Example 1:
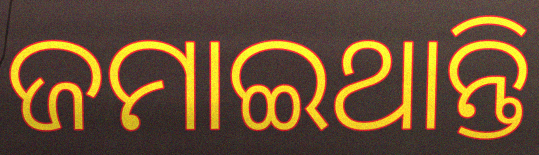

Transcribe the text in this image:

ଜମାଇଥାନ୍ତି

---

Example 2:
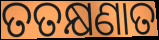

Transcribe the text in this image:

ତତକ୍ଷଣାତ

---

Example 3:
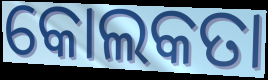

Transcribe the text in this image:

କୋଲକତା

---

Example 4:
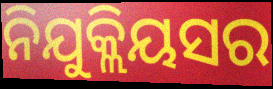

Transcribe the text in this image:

ନିଯୁକ୍ଲିୟସର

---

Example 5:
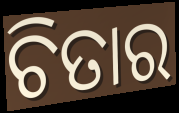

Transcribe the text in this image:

ଚିତାର